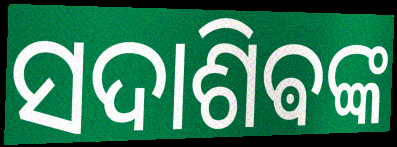
ସଦାଶିଵଙ୍କ